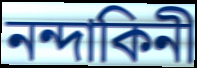
নন্দাকিনী